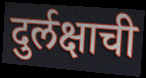
दुर्लक्षाची